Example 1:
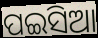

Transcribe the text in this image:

ପଇସିଆ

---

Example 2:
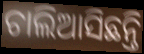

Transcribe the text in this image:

ଚାଲିଆସିଛନ୍ତି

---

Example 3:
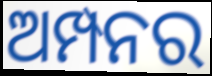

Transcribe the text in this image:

ଅମ୍ପନର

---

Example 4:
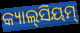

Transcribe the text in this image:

କ୍ୟାଲ୍‌ସିୟମ୍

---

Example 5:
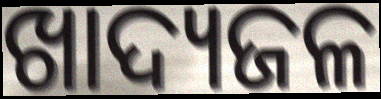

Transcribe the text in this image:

ଖାଦ୍ୟଜଳ